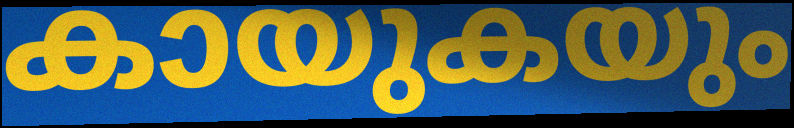
കായുകയും